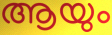
ആയും